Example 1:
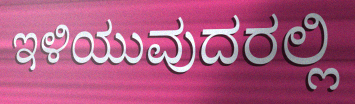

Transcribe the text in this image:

ಇಳಿಯುವುದರಲ್ಲಿ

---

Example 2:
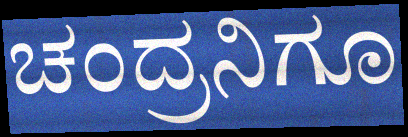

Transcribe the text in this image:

ಚಂದ್ರನಿಗೂ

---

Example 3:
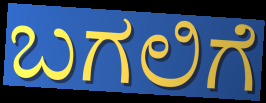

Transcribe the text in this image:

ಬಗಲಿಗೆ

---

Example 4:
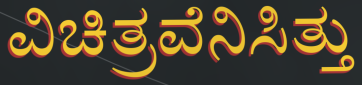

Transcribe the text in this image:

ವಿಚಿತ್ರವೆನಿಸಿತ್ತು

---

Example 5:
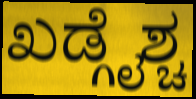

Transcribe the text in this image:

ಖಡ್ಗೈಶ್ಚ